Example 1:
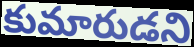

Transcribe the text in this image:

కుమారుడని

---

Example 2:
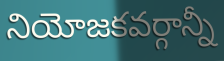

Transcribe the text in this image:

నియోజకవర్గాన్నీ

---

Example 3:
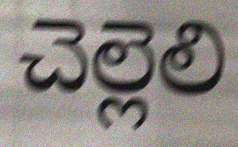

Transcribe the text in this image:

చెల్లెలి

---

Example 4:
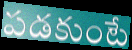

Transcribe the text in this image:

పడకుంటే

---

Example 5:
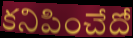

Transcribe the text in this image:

కనిపించేదో